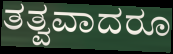
ತತ್ವವಾದರೂ